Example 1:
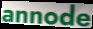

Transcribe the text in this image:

annode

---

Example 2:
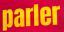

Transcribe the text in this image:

parler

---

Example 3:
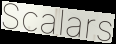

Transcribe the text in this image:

Scalars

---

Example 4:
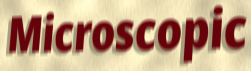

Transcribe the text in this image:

Microscopic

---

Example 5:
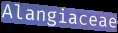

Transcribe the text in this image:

Alangiaceae